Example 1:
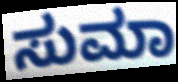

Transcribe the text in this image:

ಸುಮಾ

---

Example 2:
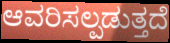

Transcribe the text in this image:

ಆವರಿಸಲ್ಪಡುತ್ತದೆ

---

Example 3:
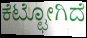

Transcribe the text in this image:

ಕೆಟ್ಟೋಗಿದೆ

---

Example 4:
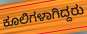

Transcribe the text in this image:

ಕೂಲಿಗಳಾಗಿದ್ದರು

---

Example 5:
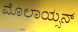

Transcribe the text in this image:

ಮೊಲಾಯ್ಸನ್